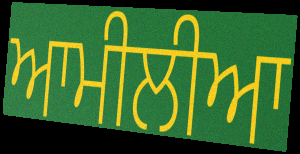
ਆਮੀਲੀਆ